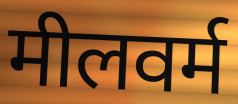
मीलवर्म